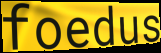
foedus